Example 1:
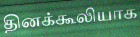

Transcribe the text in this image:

தினக்கூலியாக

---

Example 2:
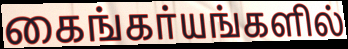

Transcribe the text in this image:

கைங்கர்யங்களில்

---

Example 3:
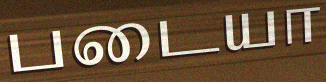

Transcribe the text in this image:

படையா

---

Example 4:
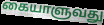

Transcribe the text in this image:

கையாளுவது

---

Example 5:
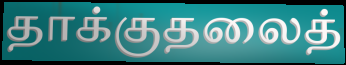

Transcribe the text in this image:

தாக்குதலைத்